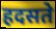
हदसते